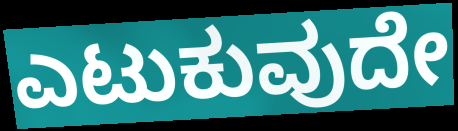
ಎಟುಕುವುದೇ